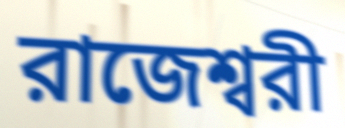
রাজেশ্বরী